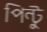
পিন্টু